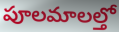
పూలమాలల్తో